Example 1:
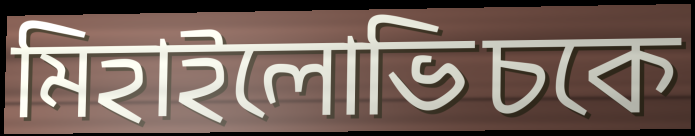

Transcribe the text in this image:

মিহাইলোভিচকে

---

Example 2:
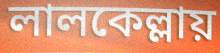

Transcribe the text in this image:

লালকেল্লায়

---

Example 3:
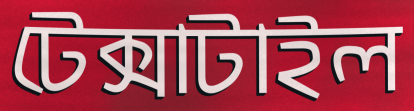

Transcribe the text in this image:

টেক্সাটাইল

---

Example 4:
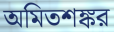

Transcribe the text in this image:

অমিতশঙ্কর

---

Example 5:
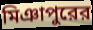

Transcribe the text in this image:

মিঞাপুরের